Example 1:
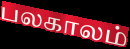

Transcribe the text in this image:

பலகாலம்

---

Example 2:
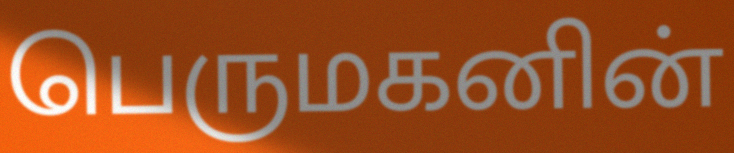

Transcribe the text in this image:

பெருமகனின்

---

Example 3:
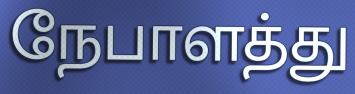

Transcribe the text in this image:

நேபாளத்து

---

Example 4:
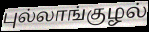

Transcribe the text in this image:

புல்லாங்குழல்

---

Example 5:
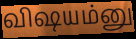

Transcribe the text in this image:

விஷயம்னு